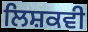
ਲਿਸ਼ਕਵੀ